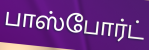
பாஸ்போர்ட்